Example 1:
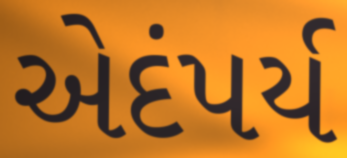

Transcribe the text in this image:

એદંપર્ય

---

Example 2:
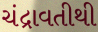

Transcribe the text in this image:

ચંદ્રાવતીથી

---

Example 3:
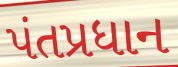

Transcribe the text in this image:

પંતપ્રધાન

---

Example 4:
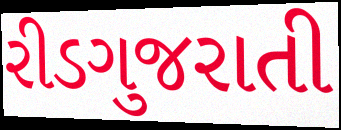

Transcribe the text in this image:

રીડગુજરાતી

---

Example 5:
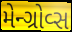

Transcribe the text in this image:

મેન્ગ્રોવ્સ